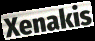
Xenakis